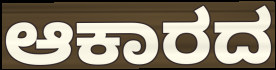
ಆಕಾರದ